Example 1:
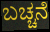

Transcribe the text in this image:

ಬಚ್ಚನೆ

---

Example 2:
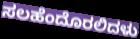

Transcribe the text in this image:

ಸಲಹೆಂದೊರಲಿದಳು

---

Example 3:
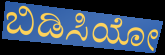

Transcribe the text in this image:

ಬಿಡಿಸಿಯೋ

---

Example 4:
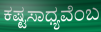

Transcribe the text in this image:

ಕಷ್ಟಸಾಧ್ಯವೆಂಬ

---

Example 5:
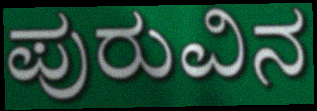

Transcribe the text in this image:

ಪುರುವಿನ